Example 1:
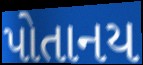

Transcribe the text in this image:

પોતાનય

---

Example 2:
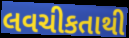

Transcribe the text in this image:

લવચીકતાથી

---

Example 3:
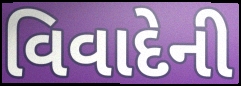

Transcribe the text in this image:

વિવાદેની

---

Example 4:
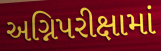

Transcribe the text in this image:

અગ્નિપરીક્ષામાં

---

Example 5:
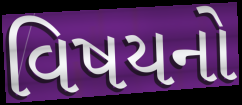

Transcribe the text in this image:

વિષયનો